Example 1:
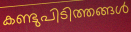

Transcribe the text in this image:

കണ്ടുപിടിത്തങ്ങൾ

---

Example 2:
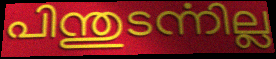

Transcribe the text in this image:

പിന്തുടൎന്നില്ല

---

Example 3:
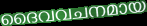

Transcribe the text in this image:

ദൈവവചനമായ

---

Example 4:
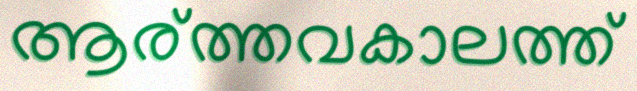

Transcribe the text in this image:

ആര്ത്തവകാലത്ത്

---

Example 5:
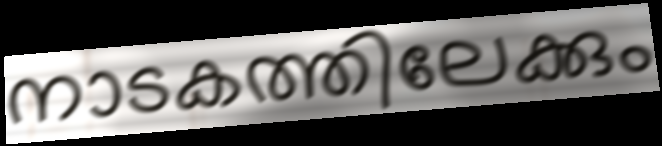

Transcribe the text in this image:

നാടകത്തിലേക്കും